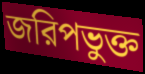
জরিপভুক্ত